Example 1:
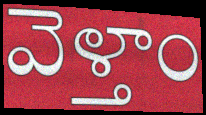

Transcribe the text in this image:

వెళ్తాం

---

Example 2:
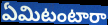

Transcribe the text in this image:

ఏమిటంటారా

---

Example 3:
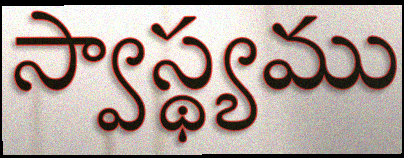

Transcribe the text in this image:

స్వాస్థ్యము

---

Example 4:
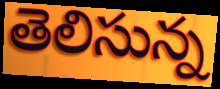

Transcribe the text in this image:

తెలిసున్న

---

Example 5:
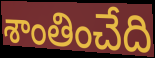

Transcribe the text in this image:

శాంతించేది